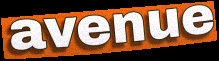
avenue